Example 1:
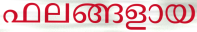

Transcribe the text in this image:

ഫലങ്ങളായ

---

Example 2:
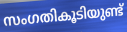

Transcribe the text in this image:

സംഗതികൂടിയുണ്ട്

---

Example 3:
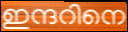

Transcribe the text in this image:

ഇന്ദറിനെ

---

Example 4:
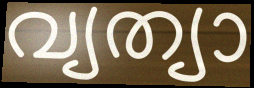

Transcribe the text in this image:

വ്യത്യാ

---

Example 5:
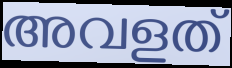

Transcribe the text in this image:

അവളത്